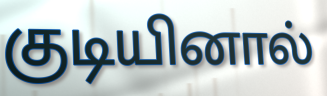
குடியினால்